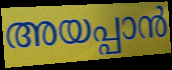
അയപ്പാൻ